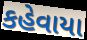
કહેવાયા